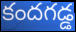
కందగడ్డ